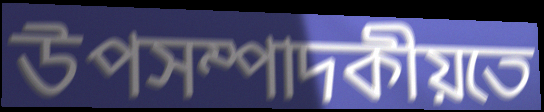
উপসম্পাদকীয়তে